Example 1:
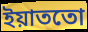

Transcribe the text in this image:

ইয়াততো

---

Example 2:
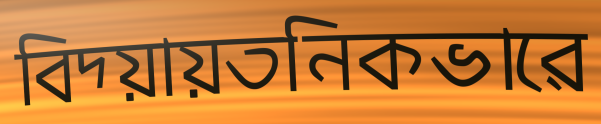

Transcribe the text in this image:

বিদ্য়ায়তনিকভাৱে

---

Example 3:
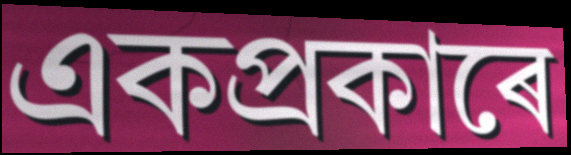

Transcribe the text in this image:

একপ্ৰকাৰে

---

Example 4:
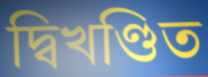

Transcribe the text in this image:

দ্বিখণ্ডিত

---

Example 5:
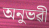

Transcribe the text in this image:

অনুভৱী